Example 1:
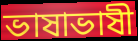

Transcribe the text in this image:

ভাষাভাষী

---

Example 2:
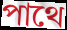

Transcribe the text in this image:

পাথে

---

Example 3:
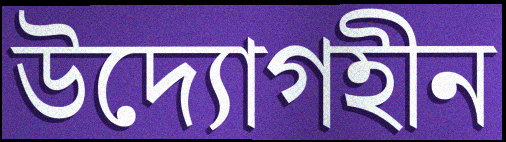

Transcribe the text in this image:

উদ্যোগহীন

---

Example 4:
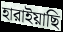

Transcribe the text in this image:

হারাইয়াছি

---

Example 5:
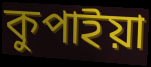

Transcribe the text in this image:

কুপাইয়া